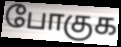
போகுக